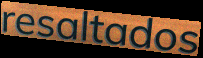
resaltados